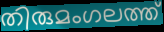
തിരുമംഗലത്ത്